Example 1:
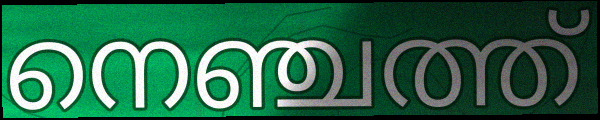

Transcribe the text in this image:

നെഞ്ചത്ത്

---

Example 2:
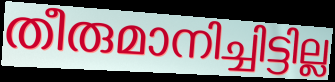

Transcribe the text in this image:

തീരുമാനിച്ചിട്ടില്ല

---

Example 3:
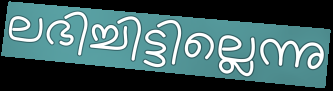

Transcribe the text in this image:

ലഭിച്ചിട്ടില്ലെന്നു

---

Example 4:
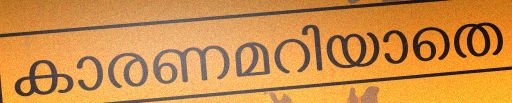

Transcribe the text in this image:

കാരണമറിയാതെ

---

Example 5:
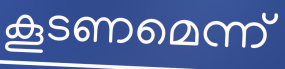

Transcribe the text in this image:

കൂടണമെന്ന്